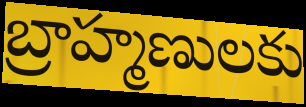
బ్రాహ్మణులకు